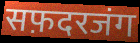
सफ़दरजंग